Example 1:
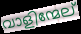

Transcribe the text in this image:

വാളിന്മേല്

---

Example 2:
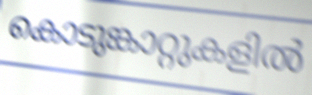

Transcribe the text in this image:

കൊടുങ്കാറ്റുകളിൽ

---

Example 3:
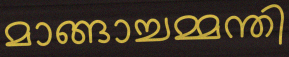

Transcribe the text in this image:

മാങ്ങാച്ചമ്മന്തി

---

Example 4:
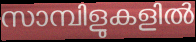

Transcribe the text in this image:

സാമ്പിളുകളിൽ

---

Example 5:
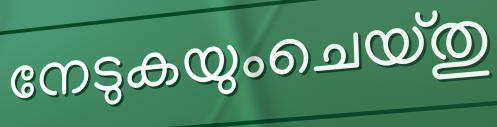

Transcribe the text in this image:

നേടുകയുംചെയ്തു